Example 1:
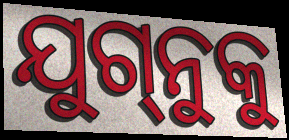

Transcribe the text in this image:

ଯୁଗ୍‌ନୁକୁ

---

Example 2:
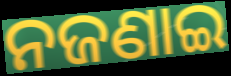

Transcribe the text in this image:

ନଜଣାଇ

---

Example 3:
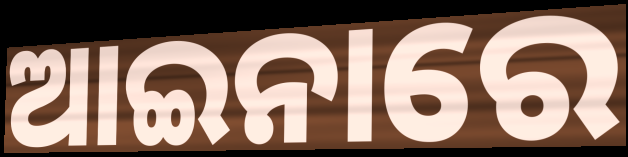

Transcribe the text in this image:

ଆଇନାରେ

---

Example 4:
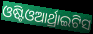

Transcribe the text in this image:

ଓଷ୍ଟିଓଆର୍ଥ୍ରାଇଟିସ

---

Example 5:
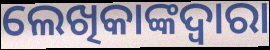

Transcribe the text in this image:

ଲେଖିକାଙ୍କଦ୍ୱାରା